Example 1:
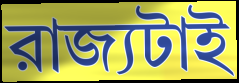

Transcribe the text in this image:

রাজ্যটাই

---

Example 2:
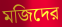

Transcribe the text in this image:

মজিদের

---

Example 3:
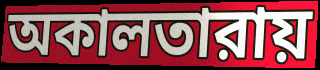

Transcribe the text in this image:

অকালতারায়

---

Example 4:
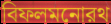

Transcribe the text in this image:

বিফলমনোরথ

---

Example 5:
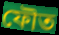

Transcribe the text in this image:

ফৌত